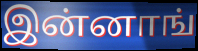
இன்னாங்